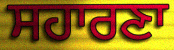
ਸਹਾਰਣਾ